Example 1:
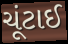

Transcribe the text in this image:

ચૂંટાઈ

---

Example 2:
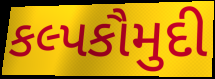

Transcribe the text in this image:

કલ્પકૌમુદી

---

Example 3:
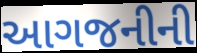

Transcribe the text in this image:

આગજનીની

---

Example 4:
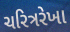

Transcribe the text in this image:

ચરિત્રરેખા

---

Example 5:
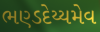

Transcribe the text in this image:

ભણ્ડદેય્યમેવ